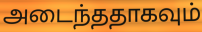
அடைந்ததாகவும்